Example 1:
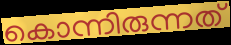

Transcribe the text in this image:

കൊന്നിരുന്നത്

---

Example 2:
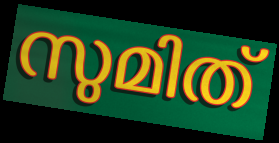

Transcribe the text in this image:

സുമിത്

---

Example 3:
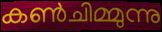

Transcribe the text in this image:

കൺചിമ്മുന്നു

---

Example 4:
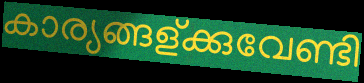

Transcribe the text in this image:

കാര്യങ്ങള്ക്കുവേണ്ടി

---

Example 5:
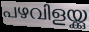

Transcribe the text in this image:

പഴവിളയ്ക്കു